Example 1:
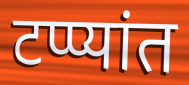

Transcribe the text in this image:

टप्प्यांत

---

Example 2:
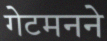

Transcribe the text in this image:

गेटमनने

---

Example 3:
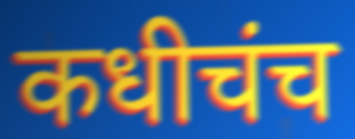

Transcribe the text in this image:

कधीचंच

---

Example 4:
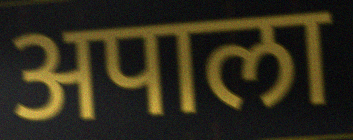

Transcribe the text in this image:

अपाला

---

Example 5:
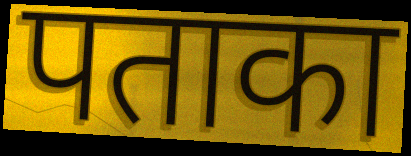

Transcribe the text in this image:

पताका